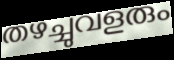
തഴച്ചുവളരും